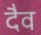
दैव